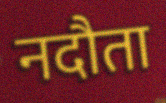
नदौता